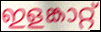
ഇളങ്കാറ്റ്